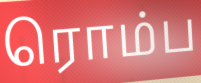
ரொம்ப